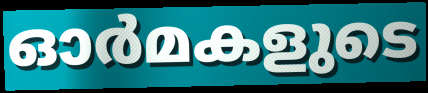
ഓർമകളുടെ